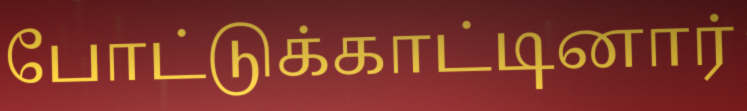
போட்டுக்காட்டினார்